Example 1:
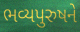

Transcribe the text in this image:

ભવ્યપુરુષને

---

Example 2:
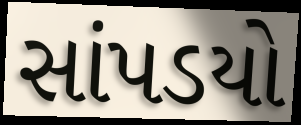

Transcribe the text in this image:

સાંપડયો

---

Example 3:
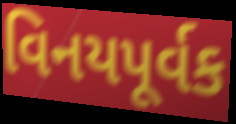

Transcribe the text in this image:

વિનયપૂર્વક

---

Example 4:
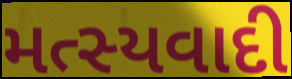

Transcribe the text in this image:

મત્સ્યવાદી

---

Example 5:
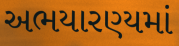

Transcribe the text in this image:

અભયારણ્યમાં